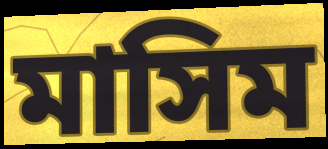
মাসিম